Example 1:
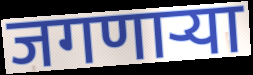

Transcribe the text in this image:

जगणाऱ्या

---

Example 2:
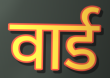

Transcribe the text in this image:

वार्ड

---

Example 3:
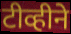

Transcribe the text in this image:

टीव्हीने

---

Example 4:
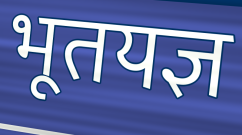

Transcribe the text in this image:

भूतयज्ञ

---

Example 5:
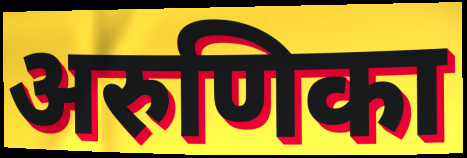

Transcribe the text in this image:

अरुणिका